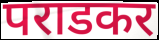
पराडकर